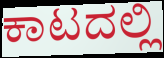
ಕಾಟದಲ್ಲಿ